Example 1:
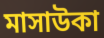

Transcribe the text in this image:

মাসাউকা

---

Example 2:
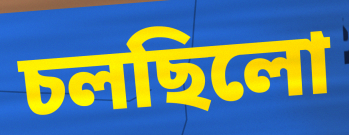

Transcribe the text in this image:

চলছিলো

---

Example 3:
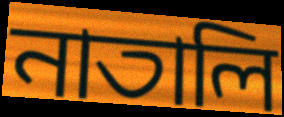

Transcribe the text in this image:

নাতালি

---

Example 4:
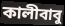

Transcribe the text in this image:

কালীবাবু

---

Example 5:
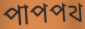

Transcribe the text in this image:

পাপপথ